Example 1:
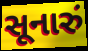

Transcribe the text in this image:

સૂનારું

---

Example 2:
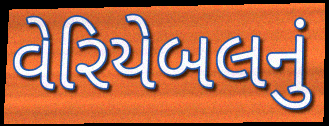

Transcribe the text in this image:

વેરિયેબલનું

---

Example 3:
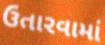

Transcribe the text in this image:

ઉતારવામાં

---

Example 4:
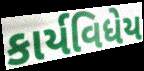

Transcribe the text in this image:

કાર્યવિધેય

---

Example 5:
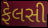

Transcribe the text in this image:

ફેલસી